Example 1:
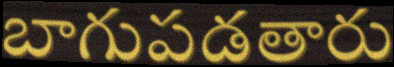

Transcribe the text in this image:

బాగుపడతారు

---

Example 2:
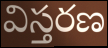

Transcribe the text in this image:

విస్తరణ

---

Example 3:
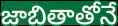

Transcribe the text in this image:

జాబితాతోనే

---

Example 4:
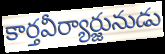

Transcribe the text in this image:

కార్తవీర్యార్జునుడు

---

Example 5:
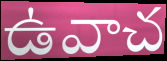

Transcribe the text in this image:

ఉవాచ